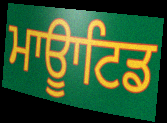
ਮਾਊਾਟਿਡ